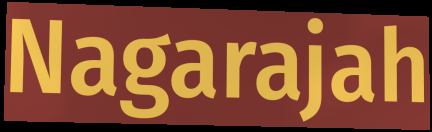
Nagarajah